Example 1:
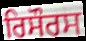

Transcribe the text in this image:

ਰਿਸੌਰਸ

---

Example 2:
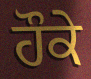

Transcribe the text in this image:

ਹੌਕੇ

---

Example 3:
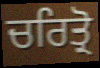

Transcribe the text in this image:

ਚਰਿਤ੍ਰੋ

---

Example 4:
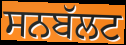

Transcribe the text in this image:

ਸਨਬੱਲਟ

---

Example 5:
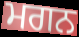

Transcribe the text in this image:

ਮਗਨ